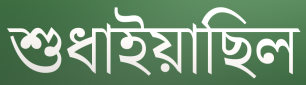
শুধাইয়াছিল